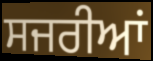
ਸਜਰੀਆਂ